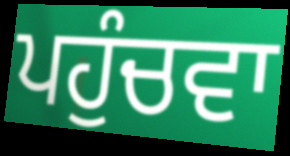
ਪਹੁੰਚਵਾ